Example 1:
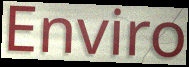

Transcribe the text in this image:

Enviro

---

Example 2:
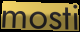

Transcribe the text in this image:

mosti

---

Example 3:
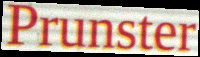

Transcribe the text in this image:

Prunster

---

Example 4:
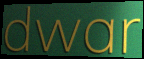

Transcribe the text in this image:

dwar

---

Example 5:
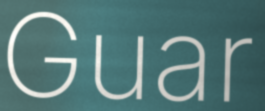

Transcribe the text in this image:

Guar